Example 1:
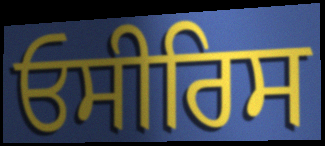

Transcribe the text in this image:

ਓਸੀਰਿਸ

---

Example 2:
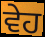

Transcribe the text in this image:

ਵੇਹ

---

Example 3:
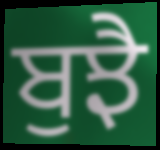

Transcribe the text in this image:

ਬੁਝੈ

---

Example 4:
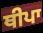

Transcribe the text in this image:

ਥੀਪਾ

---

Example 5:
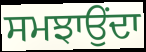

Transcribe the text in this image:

ਸਮਝਾਉਂਦਾ